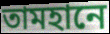
তামহানে